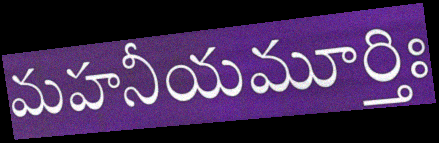
మహనీయమూర్తిః